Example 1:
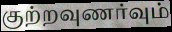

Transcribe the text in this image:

குற்றவுணர்வும்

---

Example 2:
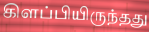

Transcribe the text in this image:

கிளப்பியிருந்தது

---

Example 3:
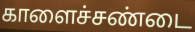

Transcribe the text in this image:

காளைச்சண்டை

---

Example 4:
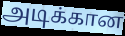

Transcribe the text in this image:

அடிக்கான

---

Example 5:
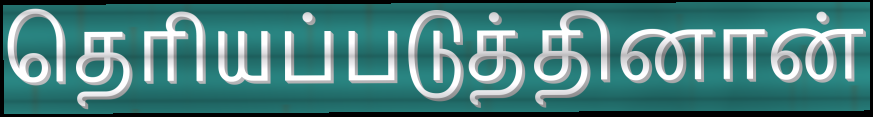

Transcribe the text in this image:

தெரியப்படுத்தினான்